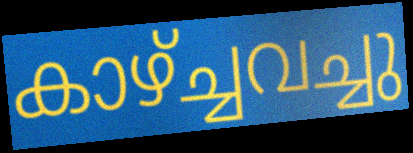
കാഴ്ച്ചവച്ചു